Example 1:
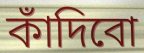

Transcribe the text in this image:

কাঁদিবো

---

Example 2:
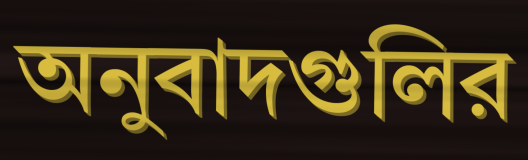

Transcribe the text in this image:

অনুবাদগুলির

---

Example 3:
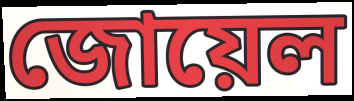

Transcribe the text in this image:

জোয়েল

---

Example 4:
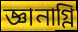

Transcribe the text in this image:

জ্ঞানাগ্নি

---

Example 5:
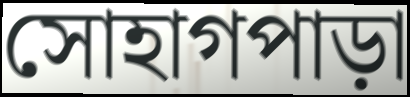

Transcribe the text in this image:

সোহাগপাড়া